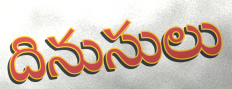
దినుసులు